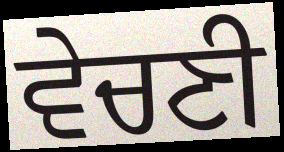
ਵੇਚਣੀ